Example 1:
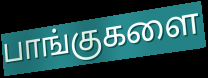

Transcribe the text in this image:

பாங்குகளை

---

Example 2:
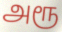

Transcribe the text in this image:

அரூ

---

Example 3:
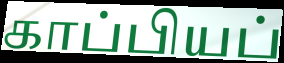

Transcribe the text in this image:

காப்பியப்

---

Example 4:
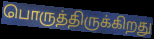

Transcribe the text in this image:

பொருத்திருக்கிறது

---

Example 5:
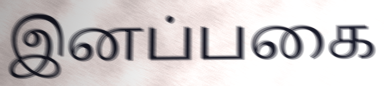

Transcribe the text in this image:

இனப்பகை